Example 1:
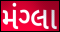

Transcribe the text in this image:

મંગ્લા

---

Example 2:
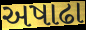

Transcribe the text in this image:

અષાઢા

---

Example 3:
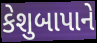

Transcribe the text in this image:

કેશુબાપાને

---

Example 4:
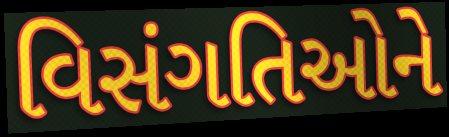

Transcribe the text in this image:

વિસંગતિઓને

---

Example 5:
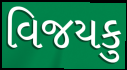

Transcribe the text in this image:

વિજયકુ